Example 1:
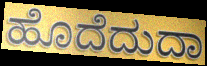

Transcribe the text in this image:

ಹೊದೆದುದಾ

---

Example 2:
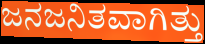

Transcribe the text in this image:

ಜನಜನಿತವಾಗಿತ್ತು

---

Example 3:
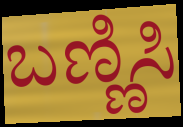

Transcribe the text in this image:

ಬಣ್ಣಿಸಿ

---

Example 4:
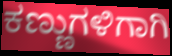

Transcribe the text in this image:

ಕಣ್ಣುಗಳಿಗಾಗಿ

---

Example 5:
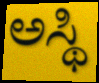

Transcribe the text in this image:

ಅಸ್ಥಿ